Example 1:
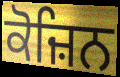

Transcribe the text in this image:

ਕੋਜ਼ਿਨ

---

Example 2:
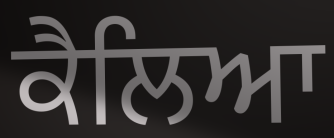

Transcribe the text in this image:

ਕੈਲਿਆ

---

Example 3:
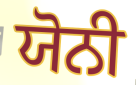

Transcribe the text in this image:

ਯੋਨੀ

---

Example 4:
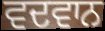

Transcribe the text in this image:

ਵਦਵਾਨ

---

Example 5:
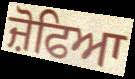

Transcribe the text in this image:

ਜ਼ੋਫਿਆ